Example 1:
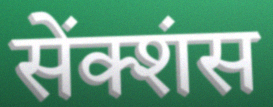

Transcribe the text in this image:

सेंक्शंस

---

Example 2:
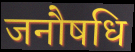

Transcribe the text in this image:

जनौषधि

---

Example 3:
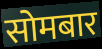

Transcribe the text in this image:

सोमबार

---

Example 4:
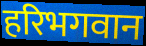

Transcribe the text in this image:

हरिभगवान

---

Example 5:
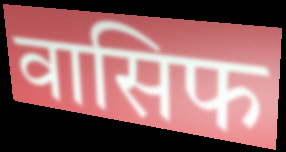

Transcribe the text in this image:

वासिफ